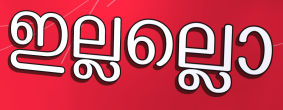
ഇല്ലല്ലൊ